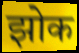
झोक